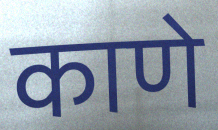
काणे